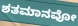
ಶತಮಾನವೋ